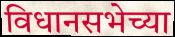
विधानसभेच्या